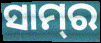
ସାମ୍‌ର